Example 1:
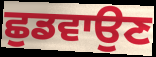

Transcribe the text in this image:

ਛੁਡਵਾਉਣ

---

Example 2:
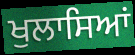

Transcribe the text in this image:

ਖੁਲਾਸਿਆਂ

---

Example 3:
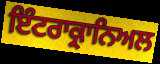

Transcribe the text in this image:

ਇੰਟਰਾਕ੍ਰਾਨਿਅਲ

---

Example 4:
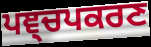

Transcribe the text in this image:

ਪਞ੍ਚਪਕਰਣ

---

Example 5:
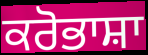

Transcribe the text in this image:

ਕਰੋਭਾਸ਼ਾ